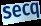
secq